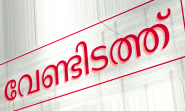
വേണ്ടിടത്ത്